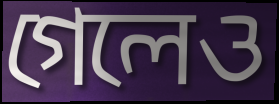
গেলেও